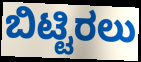
ಬಿಟ್ಟಿರಲು